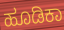
ಹೂಡಿಕಾ